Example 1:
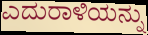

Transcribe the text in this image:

ಎದುರಾಳಿಯನ್ನು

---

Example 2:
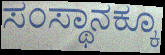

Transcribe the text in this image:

ಸಂಸ್ಥಾನಕ್ಕೂ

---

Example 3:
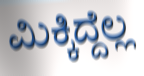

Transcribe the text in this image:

ಮಿಕ್ಕಿದ್ದೆಲ್ಲ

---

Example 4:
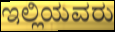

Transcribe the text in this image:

ಇಲ್ಲಿಯವರು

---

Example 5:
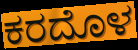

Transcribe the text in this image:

ಕರದೊಳ